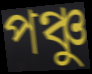
পঞ্চু